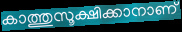
കാത്തുസൂക്ഷിക്കാനാണ്